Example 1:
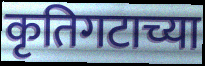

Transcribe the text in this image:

कृतिगटाच्या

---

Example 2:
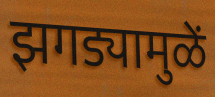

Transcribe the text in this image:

झगड्यामुळें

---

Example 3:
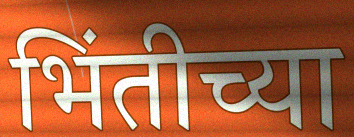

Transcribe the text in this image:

भिंतीच्या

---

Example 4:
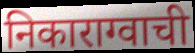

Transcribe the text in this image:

निकाराग्वाची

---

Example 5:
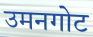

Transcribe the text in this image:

उमनगोट